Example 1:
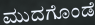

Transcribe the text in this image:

ಮುದಗೊಂಡೆ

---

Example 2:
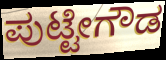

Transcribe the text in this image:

ಪುಟ್ಟೇಗೌಡ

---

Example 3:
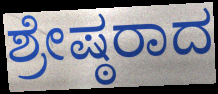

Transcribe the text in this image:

ಶ್ರೇಷ್ಠರಾದ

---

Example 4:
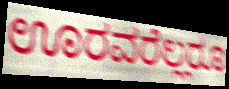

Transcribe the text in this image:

ಊರವರೆಲ್ಲರೂ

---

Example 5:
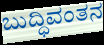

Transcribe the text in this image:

ಬುದ್ಧಿವಂತನ